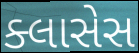
ક્લાસેસ